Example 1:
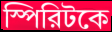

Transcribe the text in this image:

স্পিরিটকে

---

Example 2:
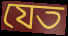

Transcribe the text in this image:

যেত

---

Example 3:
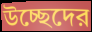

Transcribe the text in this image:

উচ্ছেদের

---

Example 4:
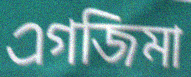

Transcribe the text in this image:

এগজিমা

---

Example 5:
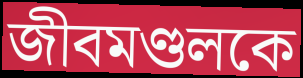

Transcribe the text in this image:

জীবমণ্ডলকে